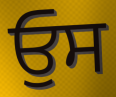
ਓੁਸ